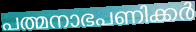
പത്മനാഭപണിക്കർ